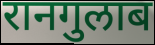
रानगुलाब